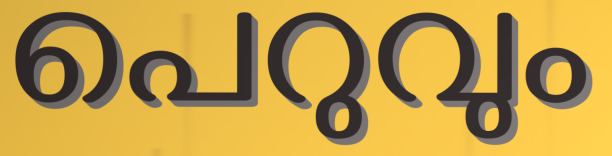
പെറുവും